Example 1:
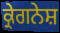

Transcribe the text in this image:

ਕ੍ਰੇਗਨੇਸ਼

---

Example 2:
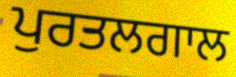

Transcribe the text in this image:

ਪੁਰਤਲਗਾਲ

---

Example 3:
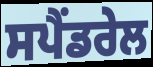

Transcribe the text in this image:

ਸਪੈਂਡਰੇਲ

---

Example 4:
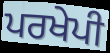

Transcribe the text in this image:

ਪਰਖੇਪੀ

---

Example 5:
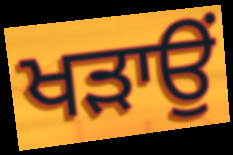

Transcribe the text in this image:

ਖੜਾਉਂ